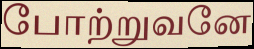
போற்றுவனே